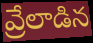
వ్రేలాడిన